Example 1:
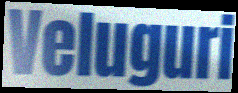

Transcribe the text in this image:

Veluguri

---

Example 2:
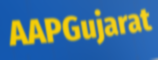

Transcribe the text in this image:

AAPGujarat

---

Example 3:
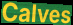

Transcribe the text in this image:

Calves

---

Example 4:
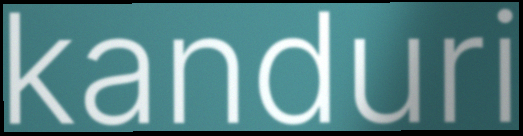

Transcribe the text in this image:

kanduri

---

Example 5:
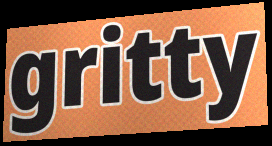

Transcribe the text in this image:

gritty